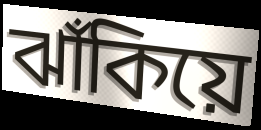
ঝাঁকিয়ে